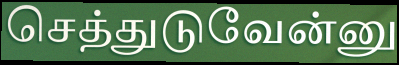
செத்துடுவேன்னு